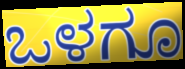
ಒಳಗೂ